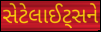
સેટેલાઈટ્સને